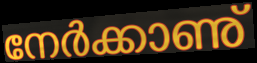
നേർക്കാണു്